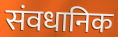
संवधानिक